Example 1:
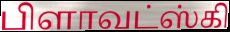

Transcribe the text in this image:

பிளாவட்ஸ்கி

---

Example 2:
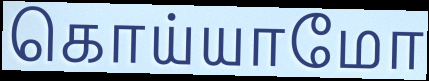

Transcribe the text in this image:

கொய்யாமோ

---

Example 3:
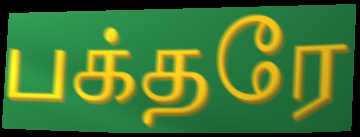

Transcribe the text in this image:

பக்தரே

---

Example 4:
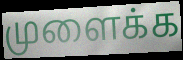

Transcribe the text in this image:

முளைக்க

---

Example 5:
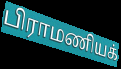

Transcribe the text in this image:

பிராமணியக்